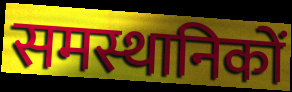
समस्थानिकों